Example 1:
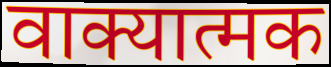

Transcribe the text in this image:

वाक्यात्मक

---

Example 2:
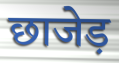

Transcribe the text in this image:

छाजेड़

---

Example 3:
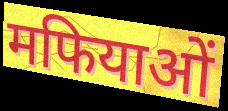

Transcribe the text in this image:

मफियाओं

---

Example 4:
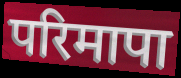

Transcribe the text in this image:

परिमापा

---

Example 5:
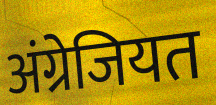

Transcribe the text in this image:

अंग्रेजियत